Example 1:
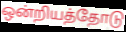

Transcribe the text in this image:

ஒன்றியத்தோடு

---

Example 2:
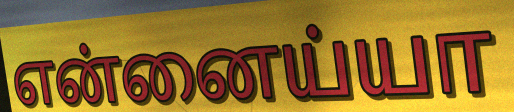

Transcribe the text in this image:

என்னைய்யா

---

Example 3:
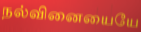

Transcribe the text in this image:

நல்வினையையே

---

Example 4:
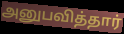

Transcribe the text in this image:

அனுபவித்தார்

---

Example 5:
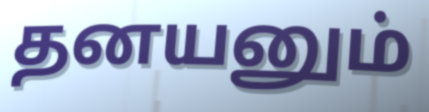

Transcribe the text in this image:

தனயனும்